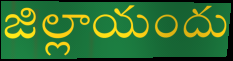
జిల్లాయందు